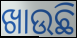
ଖାଉଛି